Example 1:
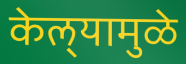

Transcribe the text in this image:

केल्यामुळे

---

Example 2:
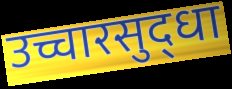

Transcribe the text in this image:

उच्चारसुद्धा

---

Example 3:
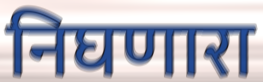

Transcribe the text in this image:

निघणारा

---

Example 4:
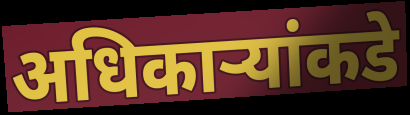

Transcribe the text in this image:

अधिकाऱ्यांकडे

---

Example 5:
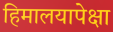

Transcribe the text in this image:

हिमालयापेक्षा